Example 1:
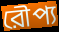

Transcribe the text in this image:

রৌপ্য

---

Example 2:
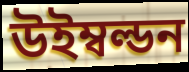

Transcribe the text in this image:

উইম্বল্ডন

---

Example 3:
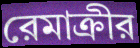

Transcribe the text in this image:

রেমাক্রীর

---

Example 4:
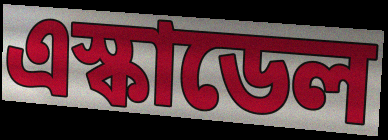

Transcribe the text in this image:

এস্কাডেল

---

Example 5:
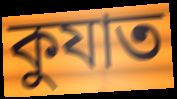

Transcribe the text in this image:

কুযাত